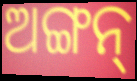
ଅଙ୍ଗନ୍